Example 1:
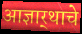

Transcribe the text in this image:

आज्ञार्थाचे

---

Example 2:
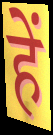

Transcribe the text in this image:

हें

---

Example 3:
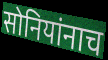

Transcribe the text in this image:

सोनियांनाच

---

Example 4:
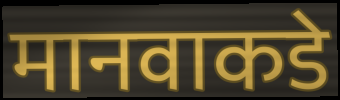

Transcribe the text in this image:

मानवाकडे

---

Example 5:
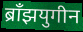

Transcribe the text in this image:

ब्राँझयुगीन